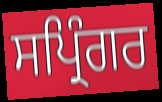
ਸਪ੍ਰਿੰਗਰ